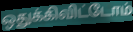
ஒதுக்கிவிட்டோம்